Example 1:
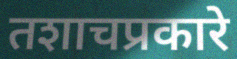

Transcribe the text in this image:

तशाचप्रकारे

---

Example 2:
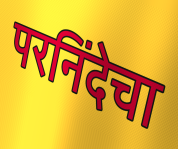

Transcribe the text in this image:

परनिंदेचा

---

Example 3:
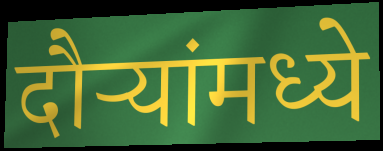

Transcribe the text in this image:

दौऱ्यांमध्ये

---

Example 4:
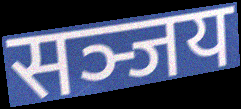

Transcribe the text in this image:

सञ्जय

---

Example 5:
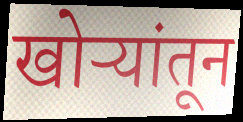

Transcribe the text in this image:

खोऱ्यांतून